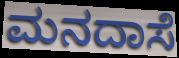
ಮನದಾಸೆ